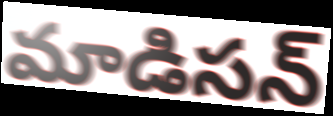
మాడిసన్